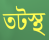
তটস্থ